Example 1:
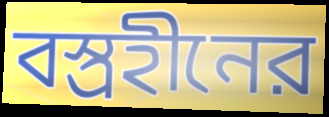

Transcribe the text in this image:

বস্ত্রহীনের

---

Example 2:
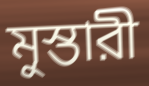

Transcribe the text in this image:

মুস্তারী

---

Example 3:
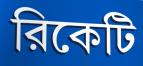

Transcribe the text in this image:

রিকেটি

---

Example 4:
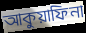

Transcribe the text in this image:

আকুয়াফিনা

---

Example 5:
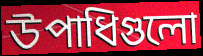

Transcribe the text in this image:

উপাধিগুলো